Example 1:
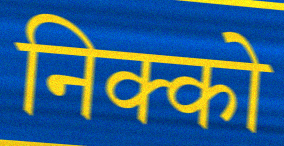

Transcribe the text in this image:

निक्को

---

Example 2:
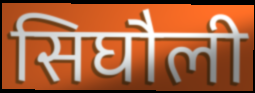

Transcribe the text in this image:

सिघौली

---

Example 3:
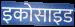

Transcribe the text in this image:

इकोसाइड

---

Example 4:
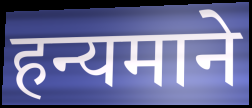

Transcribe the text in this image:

हन्यमाने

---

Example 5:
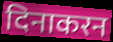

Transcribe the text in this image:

दिनाकरन